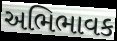
અભિભાવક